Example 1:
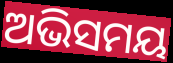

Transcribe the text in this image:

ଅଭିସମୟ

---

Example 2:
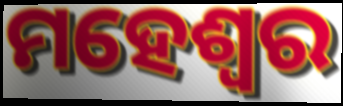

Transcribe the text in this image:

ମହେଶ୍ଵର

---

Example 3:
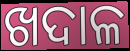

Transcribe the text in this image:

ଖଦାଳ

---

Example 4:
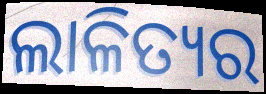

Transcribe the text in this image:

ଲାଳିତ୍ୟର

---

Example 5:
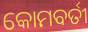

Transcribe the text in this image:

କୋମବର୍ତୀ